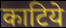
काटिये